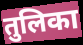
तुलिका